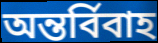
অন্তর্বিবাহ